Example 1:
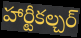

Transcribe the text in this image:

హార్టీకల్చర్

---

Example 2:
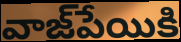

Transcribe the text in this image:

వాజ్‌పేయికి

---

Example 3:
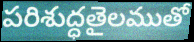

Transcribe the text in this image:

పరిశుద్ధతైలముతో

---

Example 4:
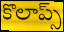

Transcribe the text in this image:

కొలాప్స్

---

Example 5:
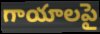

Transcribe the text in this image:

గాయాలపై